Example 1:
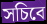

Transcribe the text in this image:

সচিবে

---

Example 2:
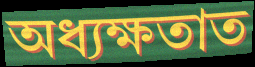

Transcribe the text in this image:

অধ্যক্ষতাত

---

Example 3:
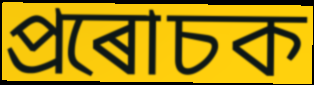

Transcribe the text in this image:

প্ৰৰোচক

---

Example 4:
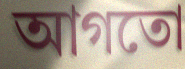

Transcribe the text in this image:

আগতো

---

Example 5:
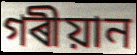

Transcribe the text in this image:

গৰীয়ান